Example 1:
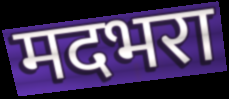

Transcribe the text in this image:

मदभरा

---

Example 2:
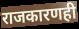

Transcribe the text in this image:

राजकारणही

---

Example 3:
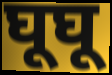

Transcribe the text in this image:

घूघू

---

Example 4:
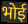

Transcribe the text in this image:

भोई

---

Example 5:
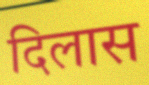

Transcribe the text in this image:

दिलास